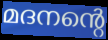
മദനന്റെ